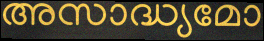
അസാദ്ധ്യമോ